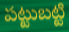
పట్టుబట్టి